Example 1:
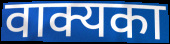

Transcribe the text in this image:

वाक्यका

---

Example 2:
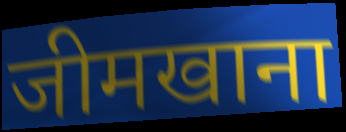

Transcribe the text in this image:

जीमखाना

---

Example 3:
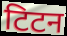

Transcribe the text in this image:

टिटन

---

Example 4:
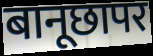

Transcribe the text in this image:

बानूछापर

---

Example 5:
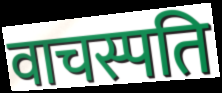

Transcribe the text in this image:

वाचस्पति